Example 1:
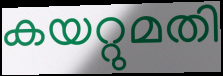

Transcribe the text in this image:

കയറ്റുമതി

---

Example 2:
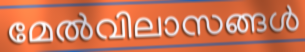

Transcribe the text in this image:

മേൽവിലാസങ്ങൾ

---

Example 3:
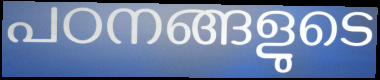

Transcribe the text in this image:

പഠനങ്ങളുടെ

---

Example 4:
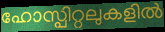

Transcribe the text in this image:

ഹോസ്പിറ്റലുകളിൽ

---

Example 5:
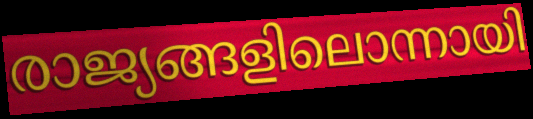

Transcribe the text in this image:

രാജ്യങ്ങളിലൊന്നായി